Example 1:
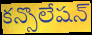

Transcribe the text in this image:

కన్సొలేషన్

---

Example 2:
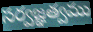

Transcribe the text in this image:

సర్వజ్ఞత్వము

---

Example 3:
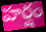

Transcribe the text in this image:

హర్షం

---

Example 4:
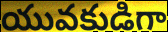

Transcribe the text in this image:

యువకుడిగా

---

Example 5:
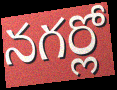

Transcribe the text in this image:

నగర్లో